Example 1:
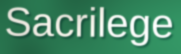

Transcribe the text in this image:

Sacrilege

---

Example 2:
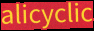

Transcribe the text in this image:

alicyclic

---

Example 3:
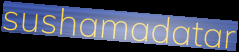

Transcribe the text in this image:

sushamadatar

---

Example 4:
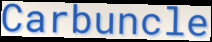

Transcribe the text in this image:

Carbuncle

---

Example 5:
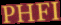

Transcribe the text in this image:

PHFI